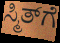
ಸ್ಮಿತ್‌ಗೆ